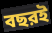
বছরই